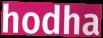
hodha